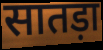
सातड़ा